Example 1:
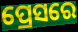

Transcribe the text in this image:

ପ୍ରେସରେ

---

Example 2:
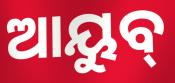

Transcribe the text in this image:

ଆୟୁବ୍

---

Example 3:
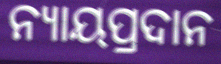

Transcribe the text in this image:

ନ୍ୟାୟପ୍ରଦାନ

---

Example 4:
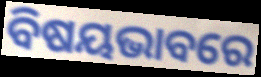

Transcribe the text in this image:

ବିଷୟଭାବରେ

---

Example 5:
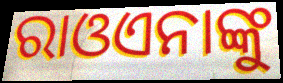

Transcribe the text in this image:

ରାଓଏନାଙ୍କୁ